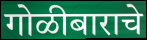
गोळीबाराचे